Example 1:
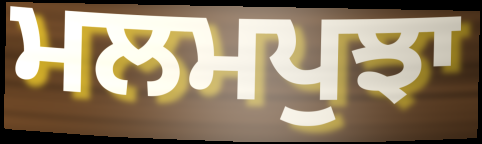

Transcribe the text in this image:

ਮਲਮਪੁਝਾ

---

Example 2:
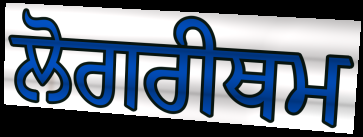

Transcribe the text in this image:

ਲੋਗਰੀਥਮ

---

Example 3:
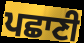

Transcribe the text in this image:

ਪਛਾਣੀ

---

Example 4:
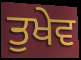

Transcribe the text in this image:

ਤੁਖੇਵ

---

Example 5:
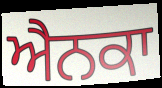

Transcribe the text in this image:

ਐਨਕਾ